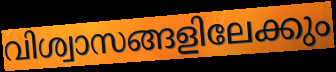
വിശ്വാസങ്ങളിലേക്കും